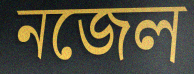
নজেল